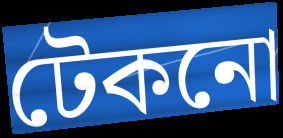
টেকনো